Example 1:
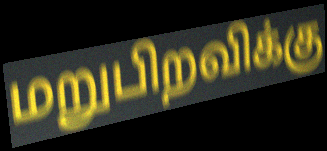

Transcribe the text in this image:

மறுபிறவிக்கு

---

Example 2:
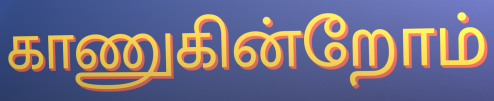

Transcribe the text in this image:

காணுகின்றோம்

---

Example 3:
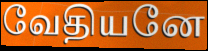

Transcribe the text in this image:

வேதியனே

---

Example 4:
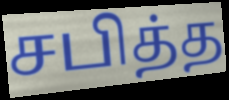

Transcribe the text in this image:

சபித்த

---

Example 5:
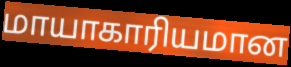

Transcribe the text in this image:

மாயாகாரியமான